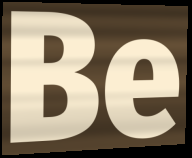
Be